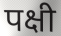
पक्षी